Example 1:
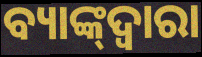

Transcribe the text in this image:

ବ୍ୟାଙ୍କ୍‌ଦ୍ୱାରା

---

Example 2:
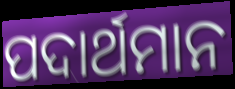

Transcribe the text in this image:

ପଦାର୍ଥମାନ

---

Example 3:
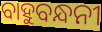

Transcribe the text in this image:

ବାହୁବନ୍ଧନୀ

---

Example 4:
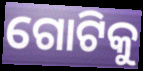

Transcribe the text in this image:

ଗୋଟିକୁ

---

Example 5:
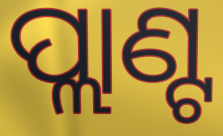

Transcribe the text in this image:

ପ୍ଲାଣ୍ଟ